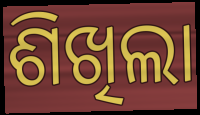
ଶିଖିଲା